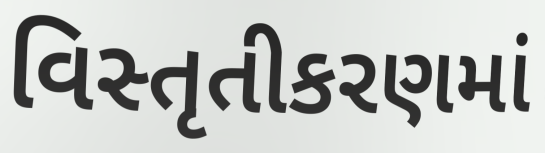
વિસ્તૃતીકરણમાં